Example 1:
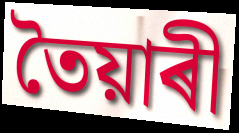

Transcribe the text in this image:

তৈয়াৰী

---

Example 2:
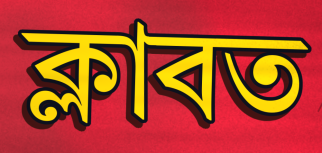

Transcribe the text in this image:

ক্লাবত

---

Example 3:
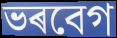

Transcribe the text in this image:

ভৰবেগ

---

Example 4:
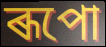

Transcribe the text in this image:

ৰূপো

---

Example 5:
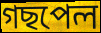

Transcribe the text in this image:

গছপেল